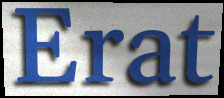
Erat